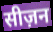
सीज़न